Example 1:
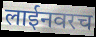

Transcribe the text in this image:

लाईनवरच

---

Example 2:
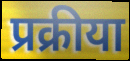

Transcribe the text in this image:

प्रक्रीया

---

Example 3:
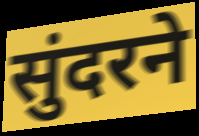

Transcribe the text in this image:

सुंदरने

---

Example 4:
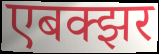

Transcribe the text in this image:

एबक्झर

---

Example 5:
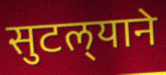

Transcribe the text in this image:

सुटल्याने